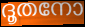
ദൂതനോ